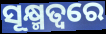
ସୂକ୍ଷ୍ମତ୍ୱରେ